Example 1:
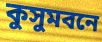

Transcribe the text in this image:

কুসুমবনে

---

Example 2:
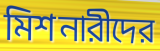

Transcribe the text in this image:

মিশনারীদের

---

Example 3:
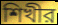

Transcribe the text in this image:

শিখীর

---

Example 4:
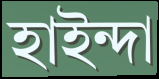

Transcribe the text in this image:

হাইন্দা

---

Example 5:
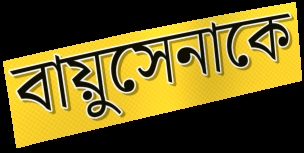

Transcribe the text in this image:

বায়ুসেনাকে